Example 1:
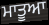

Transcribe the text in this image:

ਮਾਤੂਆ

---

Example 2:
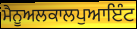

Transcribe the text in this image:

ਮੈਨੂਅਲਕਾਲਪੁਆਇੰਟ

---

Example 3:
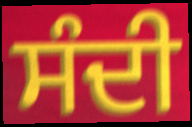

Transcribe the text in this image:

ਸੰਦੀ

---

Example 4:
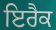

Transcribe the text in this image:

ਇਰੈਕ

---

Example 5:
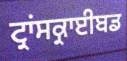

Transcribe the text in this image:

ਟ੍ਰਾਂਸਕ੍ਰਾਈਬਡ